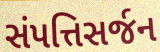
સંપત્તિસર્જન